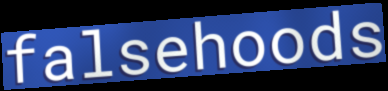
falsehoods